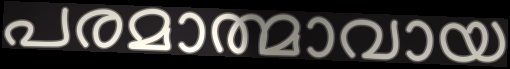
പരമാത്മാവായ